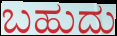
ಬಹುದು